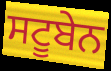
ਸਟੂਬੇਨ